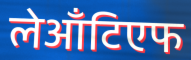
लेआँटिएफ